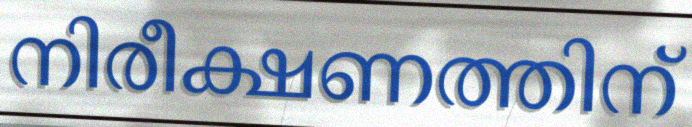
നിരീക്ഷണത്തിന്